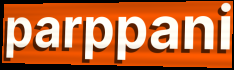
parppani